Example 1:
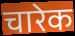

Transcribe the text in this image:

चारेक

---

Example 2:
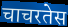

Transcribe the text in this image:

चाचरतेस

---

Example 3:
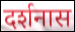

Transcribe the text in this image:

दर्शनास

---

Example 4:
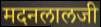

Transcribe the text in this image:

मदनलालजी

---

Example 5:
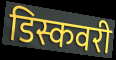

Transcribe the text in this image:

डिस्कवरी